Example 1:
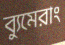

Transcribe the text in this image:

ব্যুমেরাং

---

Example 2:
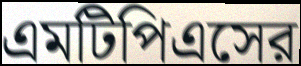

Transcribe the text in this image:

এমটিপিএসের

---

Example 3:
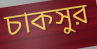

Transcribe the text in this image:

চাকসুর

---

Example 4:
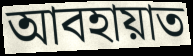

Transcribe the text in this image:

আবহায়াত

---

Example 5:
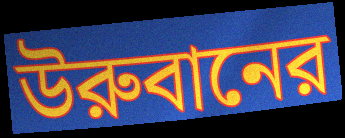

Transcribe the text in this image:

উরুবানের